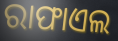
ରାଫାଏଲ